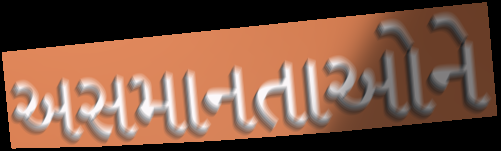
અસમાનતાઓને